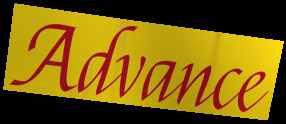
Advance